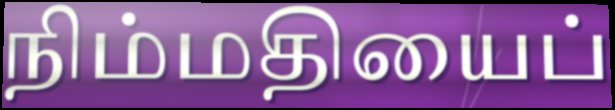
நிம்மதியைப்